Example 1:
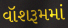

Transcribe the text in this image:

વૉશરૂમમાં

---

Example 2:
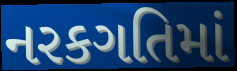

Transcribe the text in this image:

નરકગતિમાં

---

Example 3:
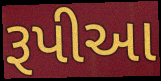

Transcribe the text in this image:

રૂપીઆ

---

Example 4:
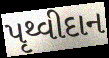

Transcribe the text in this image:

પૃથ્વીદાન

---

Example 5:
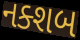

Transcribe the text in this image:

નક્શબ